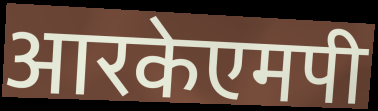
आरकेएमपी